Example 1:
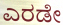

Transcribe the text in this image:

ಎರಡೇ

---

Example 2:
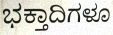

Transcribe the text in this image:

ಭಕ್ತಾದಿಗಳೂ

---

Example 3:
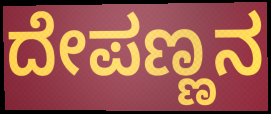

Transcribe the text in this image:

ದೇಪಣ್ಣನ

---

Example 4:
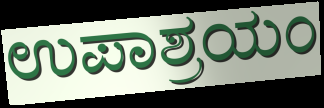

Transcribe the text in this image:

ಉಪಾಶ್ರಯಂ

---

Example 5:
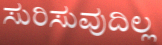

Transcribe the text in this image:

ಸುರಿಸುವುದಿಲ್ಲ